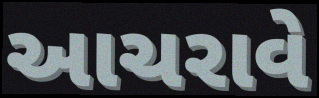
આચરાવે